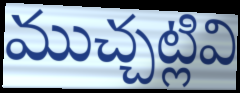
ముచ్చట్లివి